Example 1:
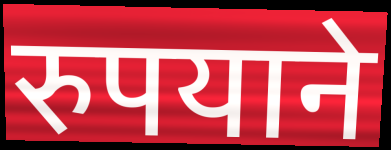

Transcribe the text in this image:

रुपयाने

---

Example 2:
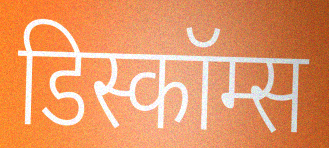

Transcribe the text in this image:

डिस्कॉम्स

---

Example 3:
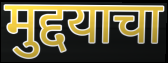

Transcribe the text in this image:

मुद्दयाचा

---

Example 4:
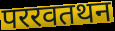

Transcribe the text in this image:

पररवतथन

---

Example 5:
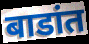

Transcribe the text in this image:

बाडांत